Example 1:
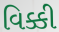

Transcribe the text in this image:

વિક્કી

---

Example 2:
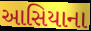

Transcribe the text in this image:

આસિયાના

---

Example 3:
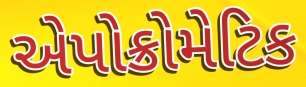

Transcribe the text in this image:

એપોક્રોમેટિક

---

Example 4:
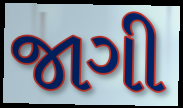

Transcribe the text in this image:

જાગી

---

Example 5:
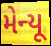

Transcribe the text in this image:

મેન્યૂ